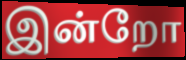
இன்றோ